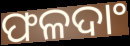
ଫଳଦାଂ